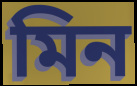
মিন